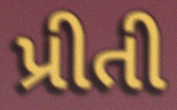
પ્રીતી